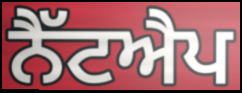
ਨੈੱਟਐਪ